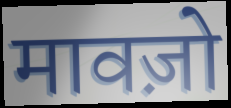
मावज़ो